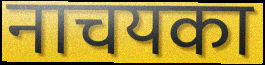
नाचयका